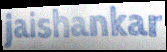
jaishankar